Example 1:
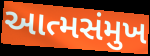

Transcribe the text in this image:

આત્મસંમુખ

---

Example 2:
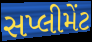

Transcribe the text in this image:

સપ્લીમેંટ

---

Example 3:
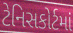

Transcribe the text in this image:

ટેનિસકોર્ટમાં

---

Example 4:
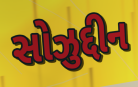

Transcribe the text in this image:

સોઝુદ્દીન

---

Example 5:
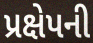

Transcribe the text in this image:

પ્રક્ષેપની